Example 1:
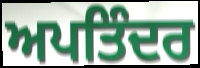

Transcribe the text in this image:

ਅਪਤਿੰਦਰ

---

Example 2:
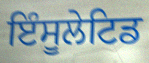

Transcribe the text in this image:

ਇੰਸੂਲੇਟਿਡ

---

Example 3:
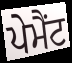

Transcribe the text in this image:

ਪੇਮੈਂਟ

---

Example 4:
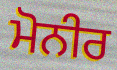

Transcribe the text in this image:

ਮੋਨੀਰ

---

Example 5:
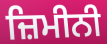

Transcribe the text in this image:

ਜ਼ਿਮੀਨੀ